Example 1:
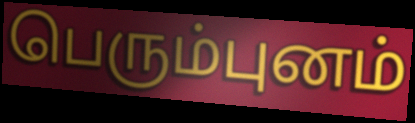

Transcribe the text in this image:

பெரும்புனம்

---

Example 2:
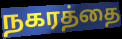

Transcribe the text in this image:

நகரத்தை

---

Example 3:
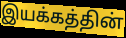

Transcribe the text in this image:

இயக்கத்தின்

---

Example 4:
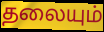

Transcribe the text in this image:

தலையும்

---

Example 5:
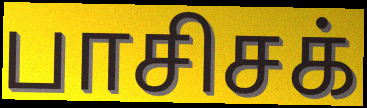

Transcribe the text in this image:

பாசிசக்